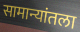
सामान्यांतला